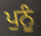
ਪੁਨੂੰ